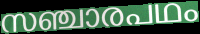
സഞ്ചാരപഥം